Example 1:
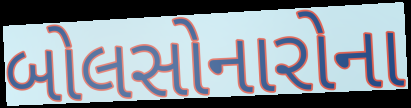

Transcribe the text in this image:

બોલસોનારોના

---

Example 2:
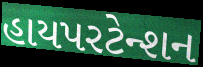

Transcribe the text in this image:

હાયપરટેન્શન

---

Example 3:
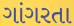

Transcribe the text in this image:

ગાંગરતા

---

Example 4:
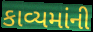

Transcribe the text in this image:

કાવ્યમાંની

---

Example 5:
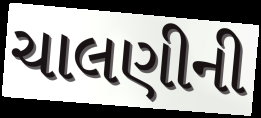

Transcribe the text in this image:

ચાલણીની